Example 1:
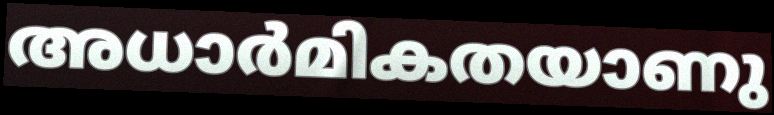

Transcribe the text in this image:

അധാർമികതയാണു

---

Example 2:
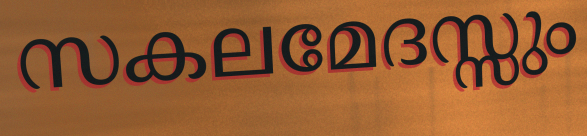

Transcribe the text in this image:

സകലമേദസ്സും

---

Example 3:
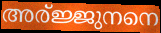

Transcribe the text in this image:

അര്ജ്ജുനനെ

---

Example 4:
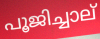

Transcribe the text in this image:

പൂജിച്ചാല്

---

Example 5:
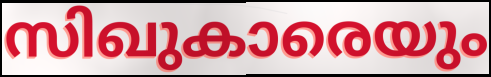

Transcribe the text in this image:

സിഖുകാരെയും